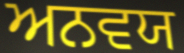
ਅਨਵਯ